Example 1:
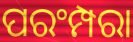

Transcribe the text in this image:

ପରଂମ୍ପରା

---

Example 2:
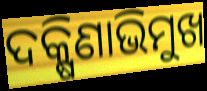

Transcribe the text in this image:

ଦକ୍ଷିଣାଭିମୁଖ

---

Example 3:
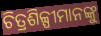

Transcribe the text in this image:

ଚିତ୍ରଶିଳ୍ପୀମାନଙ୍କୁ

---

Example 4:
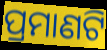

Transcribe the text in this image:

ପ୍ରମାଣଟି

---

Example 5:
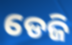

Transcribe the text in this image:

ଡେଜି